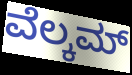
ವೆಲ್ಕಮ್